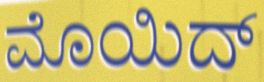
ಮೊಯಿದ್